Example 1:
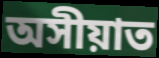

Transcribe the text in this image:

অসীয়াত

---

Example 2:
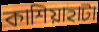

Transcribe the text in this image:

কাশিয়াহাটা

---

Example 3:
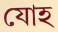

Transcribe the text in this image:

যোহ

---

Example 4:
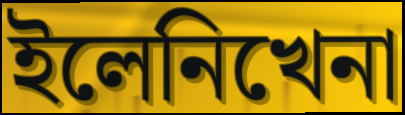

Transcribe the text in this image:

ইলেনিখেনা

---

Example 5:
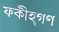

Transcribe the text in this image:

ফকীহ্গণ